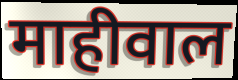
माहीवाल